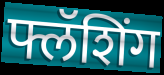
फ्लॅशिंग